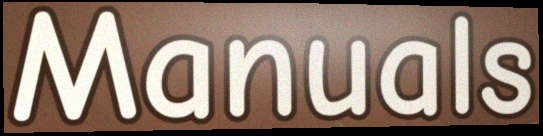
Manuals